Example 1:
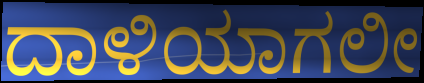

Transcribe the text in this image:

ದಾಳಿಯಾಗಲೀ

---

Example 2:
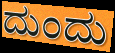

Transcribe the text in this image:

ದುಂದು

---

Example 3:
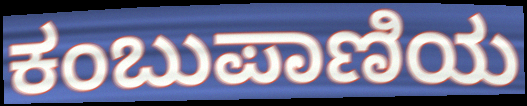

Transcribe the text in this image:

ಕಂಬುಪಾಣಿಯ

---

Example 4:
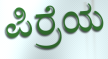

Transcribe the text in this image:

ಪಿರ್ರೆಯ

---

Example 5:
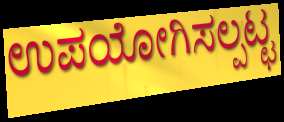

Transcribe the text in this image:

ಉಪಯೋಗಿಸಲ್ಪಟ್ಟ